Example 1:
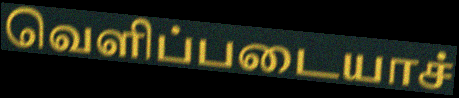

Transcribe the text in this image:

வெளிப்படையாச்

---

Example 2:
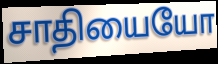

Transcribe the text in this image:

சாதியையோ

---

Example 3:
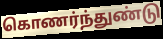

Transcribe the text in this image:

கொணர்ந்துண்டு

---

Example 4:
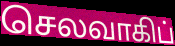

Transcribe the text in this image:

செலவாகிப்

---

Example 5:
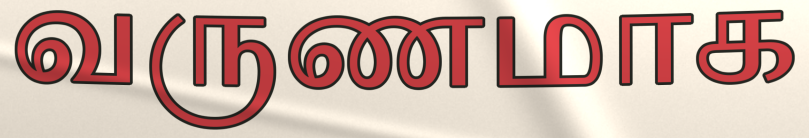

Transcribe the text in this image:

வருணமாக